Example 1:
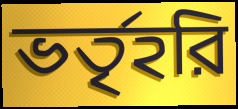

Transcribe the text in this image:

ভর্তৃহরি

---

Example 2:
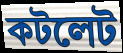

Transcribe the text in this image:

কটলেট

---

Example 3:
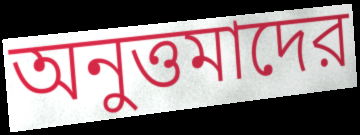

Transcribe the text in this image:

অনুত্তমাদের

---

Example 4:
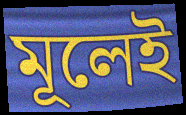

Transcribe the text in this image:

মূলেই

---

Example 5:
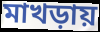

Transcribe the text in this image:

মাখড়ায়